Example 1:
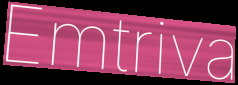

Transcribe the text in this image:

Emtriva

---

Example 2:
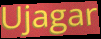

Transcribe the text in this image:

Ujagar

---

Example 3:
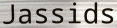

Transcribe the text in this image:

Jassids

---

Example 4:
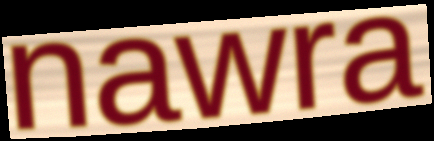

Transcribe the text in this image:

nawra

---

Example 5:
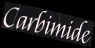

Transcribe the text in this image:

Carbimide